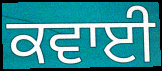
ਕਵਾਈ